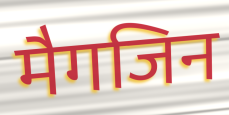
मैगजिन